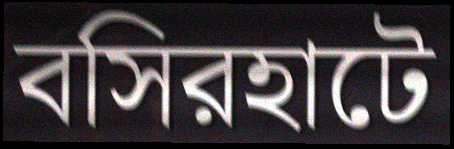
বসিরহাটে